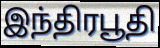
இந்திரபூதி